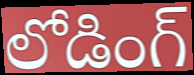
లోడింగ్